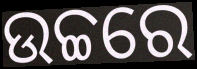
ଉଚ୍ଚରେ